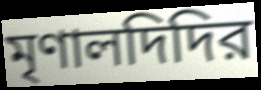
মৃণালদিদির